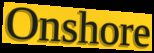
Onshore